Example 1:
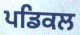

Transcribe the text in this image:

ਪਡਿਕਲ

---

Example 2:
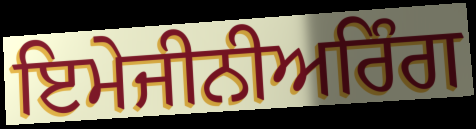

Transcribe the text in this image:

ਇਮੇਜੀਨੀਅਰਿੰਗ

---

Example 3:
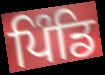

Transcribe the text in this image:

ਪਿੰਡਿ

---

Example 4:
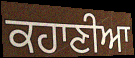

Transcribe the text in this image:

ਕਹਾਣੀਆ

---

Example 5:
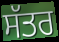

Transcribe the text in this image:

ਸੱਤਰ